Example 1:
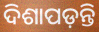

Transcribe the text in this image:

ଦିଶାପଡ଼ନ୍ତି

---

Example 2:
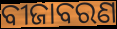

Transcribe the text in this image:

ବୀଜାବରଣ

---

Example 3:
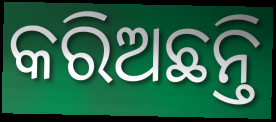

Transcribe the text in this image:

କରିଅଛନ୍ତି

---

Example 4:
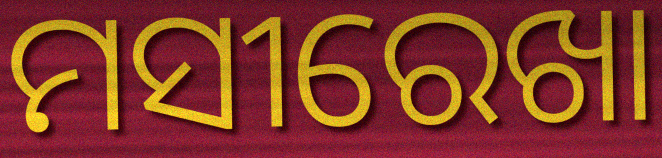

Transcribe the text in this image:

ମସୀରେଖା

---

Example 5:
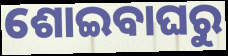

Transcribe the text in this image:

ଶୋଇବାଘରୁ